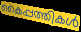
കൈപ്പത്തികൾ